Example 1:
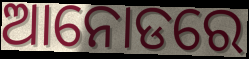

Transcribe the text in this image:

ଆନୋଡରେ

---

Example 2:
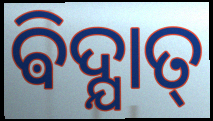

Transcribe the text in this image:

ଵିଦ୍ଯାତ୍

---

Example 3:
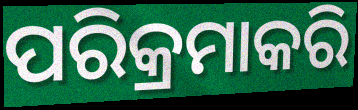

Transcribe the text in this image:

ପରିକ୍ରମାକରି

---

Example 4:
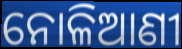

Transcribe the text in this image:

ନୋଳିଆଣୀ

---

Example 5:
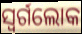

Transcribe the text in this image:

ସ୍ୱର୍ଗଲୋକ